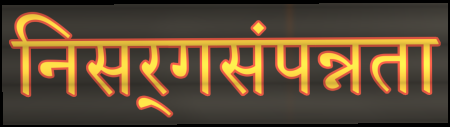
निसर्गसंपन्नता